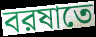
বরষাতে